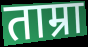
ताम्रा